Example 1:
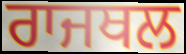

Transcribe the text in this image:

ਰਾਜਥਲ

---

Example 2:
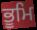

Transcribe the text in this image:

ਭੂਮਿ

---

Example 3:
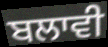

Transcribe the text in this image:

ਬਲਾਵੀ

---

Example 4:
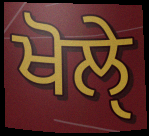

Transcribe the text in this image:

ਖੋਲੑੇ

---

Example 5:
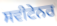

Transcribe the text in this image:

ਸਵੀਟੇਨਰ